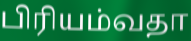
பிரியம்வதா